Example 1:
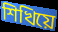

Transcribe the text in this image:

শিখিয়ে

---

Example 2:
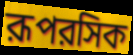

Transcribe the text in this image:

রূপরসিক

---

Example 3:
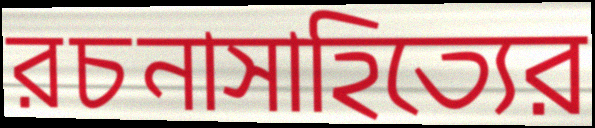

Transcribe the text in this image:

রচনাসাহিত্যের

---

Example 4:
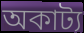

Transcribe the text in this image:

অকাট্য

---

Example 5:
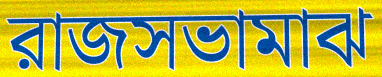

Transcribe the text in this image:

রাজসভামাঝ